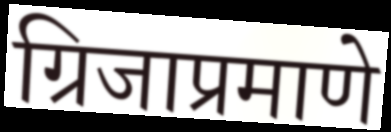
ग्रिजाप्रमाणे